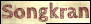
Songkran